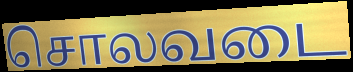
சொலவடை